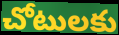
చోటులకు